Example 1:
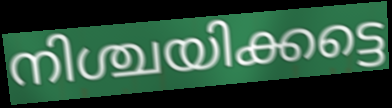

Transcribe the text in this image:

നിശ്ചയിക്കട്ടെ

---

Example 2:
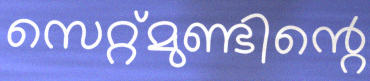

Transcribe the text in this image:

സെറ്റ്മുണ്ടിന്റെ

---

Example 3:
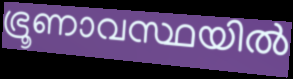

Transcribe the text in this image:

ഭ്രൂണാവസ്ഥയിൽ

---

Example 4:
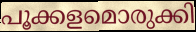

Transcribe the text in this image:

പൂക്കളമൊരുക്കി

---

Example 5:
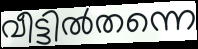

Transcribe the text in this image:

വീട്ടിൽതന്നെ